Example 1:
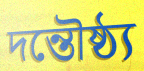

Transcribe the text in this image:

দন্তৌষ্ঠ্য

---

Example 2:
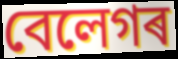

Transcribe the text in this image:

বেলেগৰ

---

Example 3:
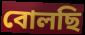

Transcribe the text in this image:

বোলছি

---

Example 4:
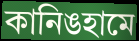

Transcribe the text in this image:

কানিঙহামে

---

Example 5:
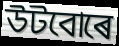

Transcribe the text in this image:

উটবোৰে